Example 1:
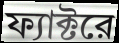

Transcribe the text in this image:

ফ্যাক্টরে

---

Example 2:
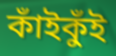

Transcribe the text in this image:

কাঁইকুঁই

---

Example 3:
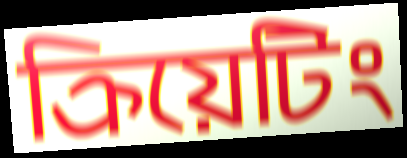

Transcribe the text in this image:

ক্রিয়েটিং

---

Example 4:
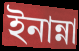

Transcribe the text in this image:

ইনান্না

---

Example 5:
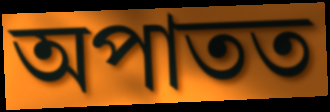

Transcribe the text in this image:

অপাতত